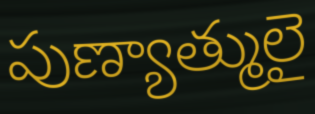
పుణ్యాత్ములై